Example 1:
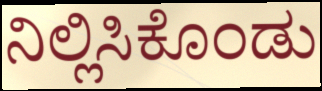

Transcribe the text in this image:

ನಿಲ್ಲಿಸಿಕೊಂಡು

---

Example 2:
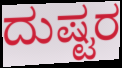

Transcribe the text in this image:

ದುಷ್ಟರ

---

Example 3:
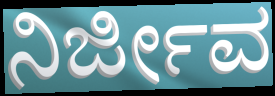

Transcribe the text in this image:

ನಿರ್ಜೀವ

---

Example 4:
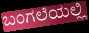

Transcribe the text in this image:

ಬಂಗಲೆಯಲ್ಲಿ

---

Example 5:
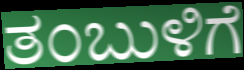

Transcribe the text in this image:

ತಂಬುಳಿಗೆ